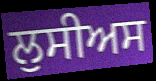
ਲੁਸੀਅਸ